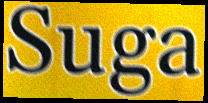
Suga